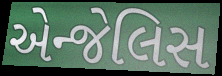
એન્જેલિસ